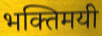
भक्तिमयी